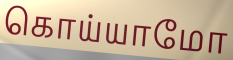
கொய்யாமோ